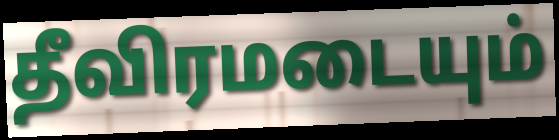
தீவிரமடையும்